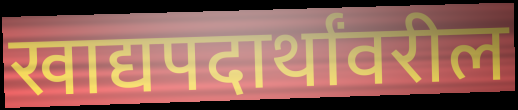
खाद्यपदार्थांवरील